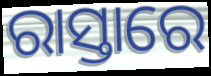
ରାସ୍ତାରେ